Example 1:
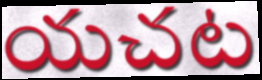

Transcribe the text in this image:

యచట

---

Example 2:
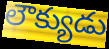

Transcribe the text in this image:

లౌక్యుడు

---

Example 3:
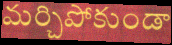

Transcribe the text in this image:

మర్చిపోకుండా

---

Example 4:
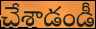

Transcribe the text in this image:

చేశాడండీ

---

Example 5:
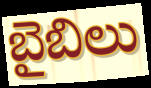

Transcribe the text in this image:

బైబిలు